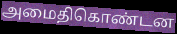
அமைதிகொண்டன